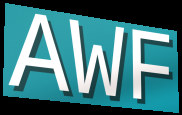
AWF